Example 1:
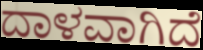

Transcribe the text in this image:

ದಾಳವಾಗಿದೆ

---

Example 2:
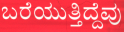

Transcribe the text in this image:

ಬರೆಯುತ್ತಿದ್ದೆವು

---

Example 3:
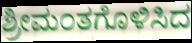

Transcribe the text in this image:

ಶ್ರೀಮಂತಗೊಳಿಸಿದ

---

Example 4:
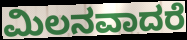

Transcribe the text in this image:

ಮಿಲನವಾದರೆ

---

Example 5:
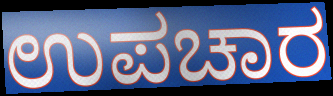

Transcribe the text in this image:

ಉಪಚಾರ